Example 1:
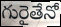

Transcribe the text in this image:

గురైతేనో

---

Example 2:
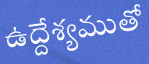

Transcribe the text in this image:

ఉద్దేశ్యముతో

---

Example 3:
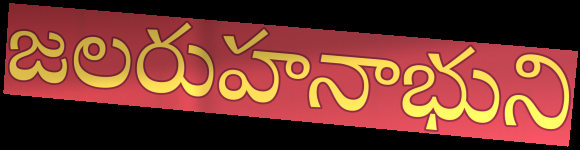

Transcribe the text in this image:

జలరుహనాభుని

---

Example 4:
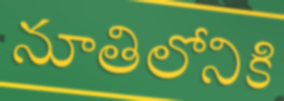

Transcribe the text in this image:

నూతిలోనికి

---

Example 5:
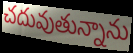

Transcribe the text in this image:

చదువుతున్నాను